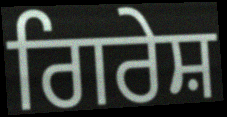
ਗਿਰੇਸ਼